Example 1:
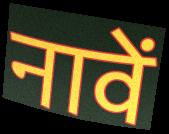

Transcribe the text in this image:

नावें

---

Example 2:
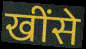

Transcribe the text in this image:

खींसे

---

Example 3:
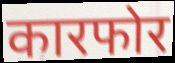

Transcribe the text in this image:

कारफोर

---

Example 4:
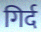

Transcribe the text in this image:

गिर्द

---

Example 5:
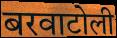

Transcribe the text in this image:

बरवाटोली